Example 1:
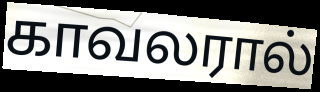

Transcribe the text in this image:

காவலரால்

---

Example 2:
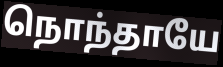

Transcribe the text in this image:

நொந்தாயே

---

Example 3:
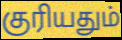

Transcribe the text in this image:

குரியதும்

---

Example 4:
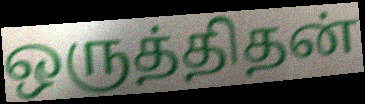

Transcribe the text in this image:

ஒருத்திதன்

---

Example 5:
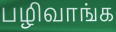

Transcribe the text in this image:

பழிவாங்க